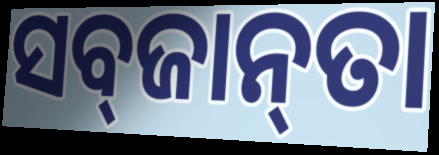
ସବ୍‌ଜାନ୍‌ତା